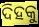
ଦିହକୁ